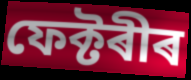
ফেক্টৰীৰ